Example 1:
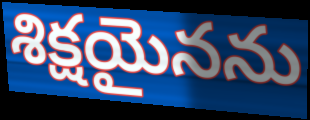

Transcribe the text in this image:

శిక్షయైనను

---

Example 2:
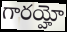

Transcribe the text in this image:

గారయ్హో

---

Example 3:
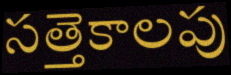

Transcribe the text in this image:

సత్తెకాలపు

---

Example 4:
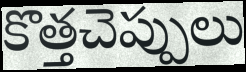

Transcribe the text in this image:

కొత్తచెప్పులు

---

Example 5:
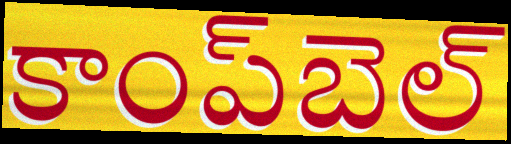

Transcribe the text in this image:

కాంప్‌బెల్